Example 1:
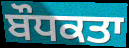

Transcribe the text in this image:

ਬੌਧਕਤਾ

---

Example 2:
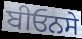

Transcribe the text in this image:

ਬੀਓਨਸੇ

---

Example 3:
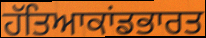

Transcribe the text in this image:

ਹੱਤਿਆਕਾਂਡਭਾਰਤ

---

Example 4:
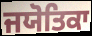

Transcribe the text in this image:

ਜਯੋਤਿਕਾ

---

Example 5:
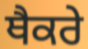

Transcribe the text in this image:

ਥੈਕਰੇ